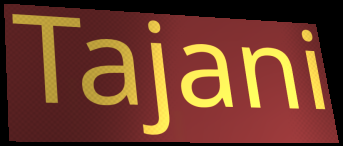
Tajani